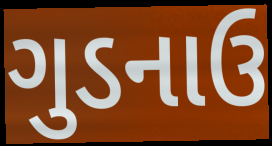
ગુડનાઉ